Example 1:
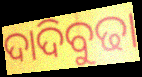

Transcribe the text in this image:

ଦାଦିବୁଢା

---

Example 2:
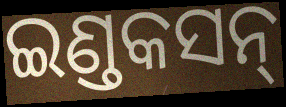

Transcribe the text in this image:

ଇଣ୍ଡକସନ୍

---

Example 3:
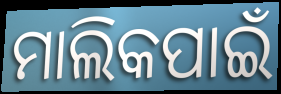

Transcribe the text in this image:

ମାଲିକପାଇଁ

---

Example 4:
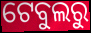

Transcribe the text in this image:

ଟେବୁଲରୁ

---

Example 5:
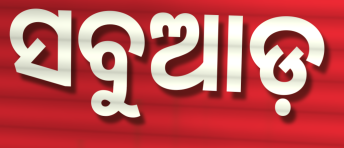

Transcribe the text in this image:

ସବୁଆଡ଼